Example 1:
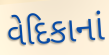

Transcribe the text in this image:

વેદિકાનાં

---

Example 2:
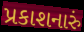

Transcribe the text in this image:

પ્રકાશનારું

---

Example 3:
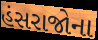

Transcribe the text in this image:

હંસરાજોના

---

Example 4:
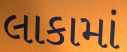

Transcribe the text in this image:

લાકામાં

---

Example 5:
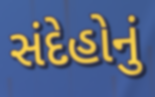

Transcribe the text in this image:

સંદેહોનું